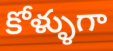
కోళ్ళుగా